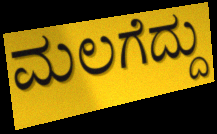
ಮಲಗೆದ್ದು